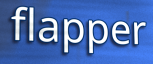
flapper